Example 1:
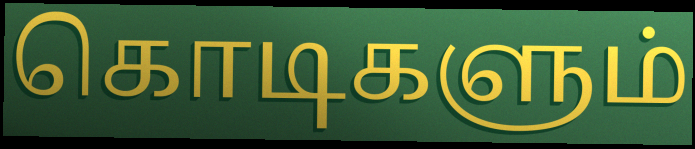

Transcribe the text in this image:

கொடிகளும்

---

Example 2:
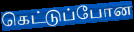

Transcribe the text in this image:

கெட்டுப்போன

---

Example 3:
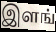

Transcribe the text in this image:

இளங்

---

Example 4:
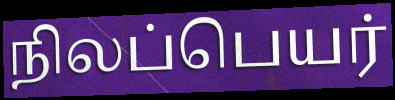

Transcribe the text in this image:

நிலப்பெயர்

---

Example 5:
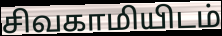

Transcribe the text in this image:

சிவகாமியிடம்